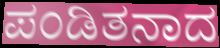
ಪಂಡಿತನಾದ